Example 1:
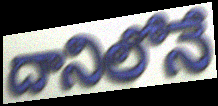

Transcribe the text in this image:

దానిలోనే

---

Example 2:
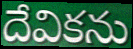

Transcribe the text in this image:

దేవికను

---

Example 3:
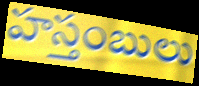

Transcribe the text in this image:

హస్తంబులు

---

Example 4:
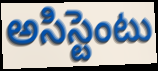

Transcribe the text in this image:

అసిస్టెంటు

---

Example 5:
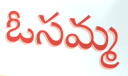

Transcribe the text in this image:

ఓసమ్మ